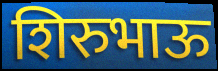
शिरुभाऊ